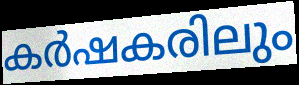
കർഷകരിലും